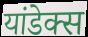
यांडेक्स